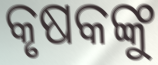
କୃଷକଙ୍କୁ